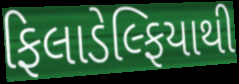
ફિલાડેલ્ફિયાથી